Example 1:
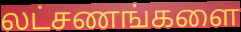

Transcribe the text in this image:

லட்சணங்களை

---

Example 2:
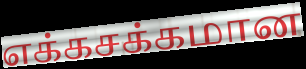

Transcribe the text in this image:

எக்கசக்கமான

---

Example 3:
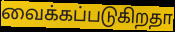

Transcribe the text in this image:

வைக்கப்படுகிறதா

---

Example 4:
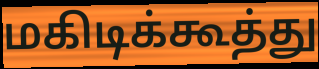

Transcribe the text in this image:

மகிடிக்கூத்து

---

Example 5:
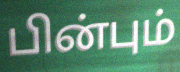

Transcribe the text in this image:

பின்பும்